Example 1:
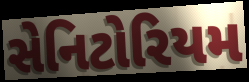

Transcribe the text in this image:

સેનિટોરિયમ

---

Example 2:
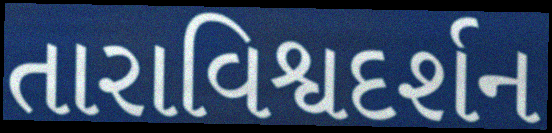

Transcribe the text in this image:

તારાવિશ્વદર્શન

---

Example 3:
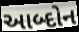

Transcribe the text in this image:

આબ્દોન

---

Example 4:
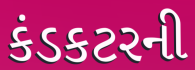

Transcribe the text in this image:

કંડકટરની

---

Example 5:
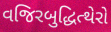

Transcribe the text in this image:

વજિરબુદ્ધિત્થેરો